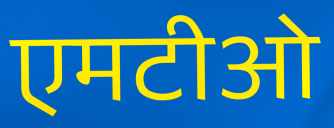
एमटीओ